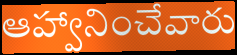
ఆహ్వానించేవారు